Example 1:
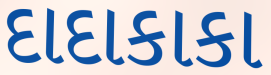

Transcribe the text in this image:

દાદાકાકા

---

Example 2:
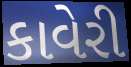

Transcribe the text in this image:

કાવેરી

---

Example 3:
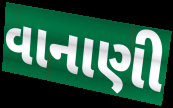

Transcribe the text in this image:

વાનાણી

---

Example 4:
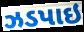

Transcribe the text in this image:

ઝડપાઇ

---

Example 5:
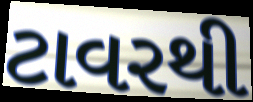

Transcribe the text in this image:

ટાવરથી